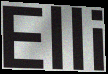
Elli